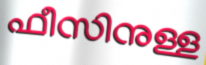
ഫീസിനുള്ള